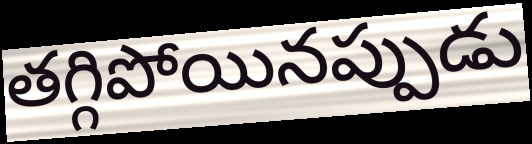
తగ్గిపోయినప్పుడు